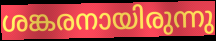
ശങ്കരനായിരുന്നു